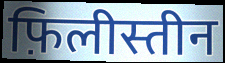
फ़िलीस्तीन